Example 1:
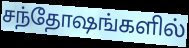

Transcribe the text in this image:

சந்தோஷங்களில்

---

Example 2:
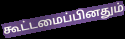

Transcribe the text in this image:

கூட்டமைப்பினதும்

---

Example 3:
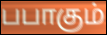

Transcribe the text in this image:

பபாகும்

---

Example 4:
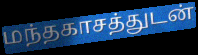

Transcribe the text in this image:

மந்தகாசத்துடன்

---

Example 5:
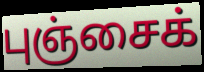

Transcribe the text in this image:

புஞ்சைக்